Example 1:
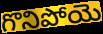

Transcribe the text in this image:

గొనిపోయె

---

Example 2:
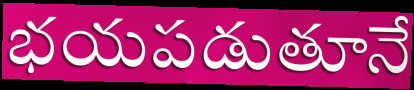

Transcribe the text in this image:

భయపడుతూనే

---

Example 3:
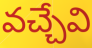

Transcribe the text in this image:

వచ్చేవి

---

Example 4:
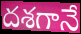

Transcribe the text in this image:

దశగానే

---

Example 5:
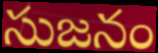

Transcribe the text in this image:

సుజనం